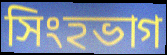
সিংহভাগ